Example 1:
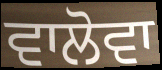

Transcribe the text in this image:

ਵਾਲੋਵਾ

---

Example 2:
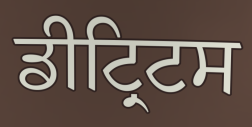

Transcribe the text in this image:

ਡੀਟ੍ਰਿਟਸ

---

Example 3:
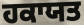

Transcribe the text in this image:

ਹਕਾਯਤ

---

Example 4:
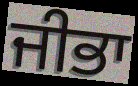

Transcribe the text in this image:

ਜੀਭਾ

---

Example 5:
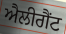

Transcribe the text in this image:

ਐਲੀਗੈਂਟ